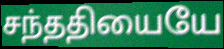
சந்ததியையே